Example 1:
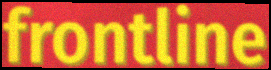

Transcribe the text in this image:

frontline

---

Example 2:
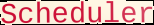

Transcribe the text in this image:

Scheduler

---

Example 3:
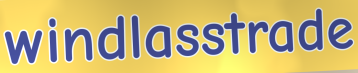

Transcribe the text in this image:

windlasstrade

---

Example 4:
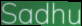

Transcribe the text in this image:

Sadhu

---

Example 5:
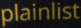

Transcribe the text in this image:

plainlist